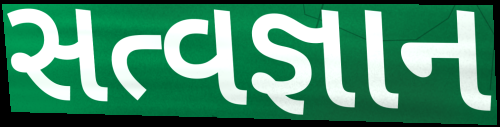
સત્વજ્ઞાન